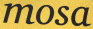
mosa